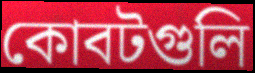
কোবটগুলি